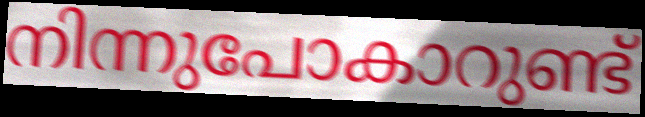
നിന്നുപോകാറുണ്ട്